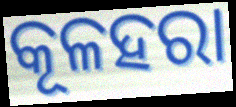
କୂଳହରା